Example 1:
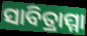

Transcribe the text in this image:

ସାବିତ୍ରାମ୍ମା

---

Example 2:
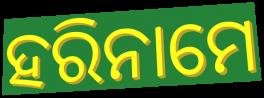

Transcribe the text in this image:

ହରିନାମେ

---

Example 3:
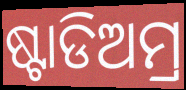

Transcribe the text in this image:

ଷ୍ଟାଡିଅମ୍ର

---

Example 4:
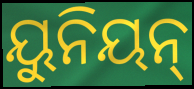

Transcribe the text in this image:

ୟୁନିୟନ୍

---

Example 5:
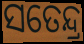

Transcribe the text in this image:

ସତେନ୍ଦ୍ର